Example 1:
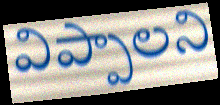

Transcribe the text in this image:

విప్పాలని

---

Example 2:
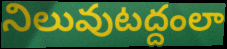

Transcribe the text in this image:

నిలువుటద్దంలా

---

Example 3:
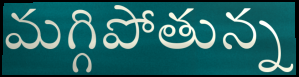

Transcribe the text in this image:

మగ్గిపోతున్న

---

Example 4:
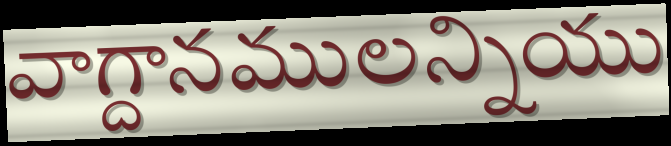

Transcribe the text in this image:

వాగ్దానములన్నియు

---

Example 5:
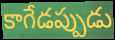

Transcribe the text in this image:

కాగేడప్పుడు